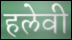
हलेवी